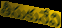
తీసుకునేవి